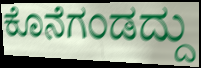
ಕೊನೆಗಂಡದ್ದು